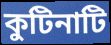
কুটিনাটি